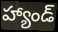
హ్యాండ్